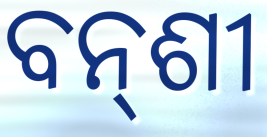
ବନ୍‍ଶୀ